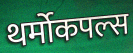
थर्मोकपल्स